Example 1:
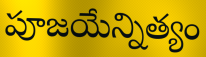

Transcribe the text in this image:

పూజయేన్నిత్యం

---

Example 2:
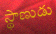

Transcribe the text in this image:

స్థాణుడు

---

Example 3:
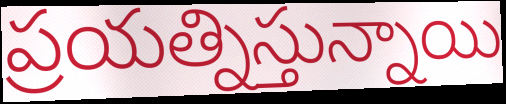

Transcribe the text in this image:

ప్రయత్నిస్తున్నాయి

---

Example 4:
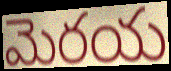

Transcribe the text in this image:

మెరయ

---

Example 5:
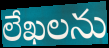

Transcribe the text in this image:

లేఖలను